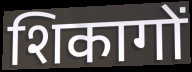
शिकागों